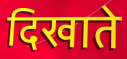
दिखाते